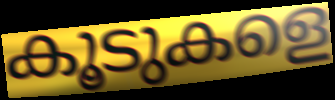
കൂടുകളെ